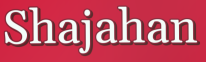
Shajahan